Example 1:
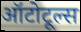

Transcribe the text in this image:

ऑटोटूल्स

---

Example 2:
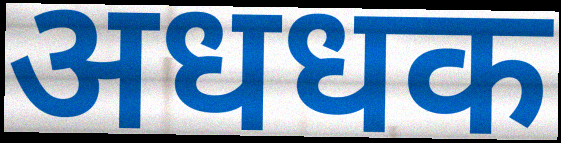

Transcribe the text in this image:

अधधक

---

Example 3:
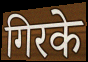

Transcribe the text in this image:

गिरके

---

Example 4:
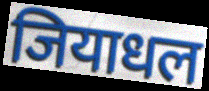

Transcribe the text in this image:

जियाधल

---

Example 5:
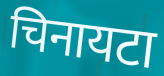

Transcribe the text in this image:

चिनायटा